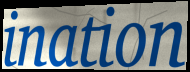
ination